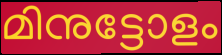
മിനുട്ടോളം